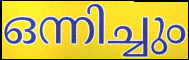
ഒന്നിച്ചും